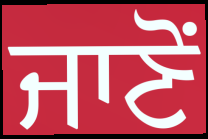
ਜਾਣੋਂ